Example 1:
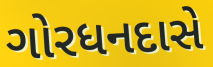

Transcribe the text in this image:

ગોરધનદાસે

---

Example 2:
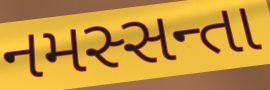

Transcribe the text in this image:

નમસ્સન્તા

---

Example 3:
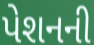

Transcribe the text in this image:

પેશનની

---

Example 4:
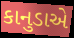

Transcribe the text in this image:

કાનુડાએ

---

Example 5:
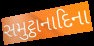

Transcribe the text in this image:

સમુટ્ઠાનાદિના